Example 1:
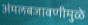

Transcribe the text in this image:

अंमलबजावणीमुळे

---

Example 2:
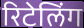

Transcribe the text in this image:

रिटेलिंग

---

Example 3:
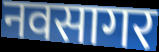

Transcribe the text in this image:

नवसागर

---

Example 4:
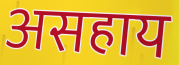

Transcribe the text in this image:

असहाय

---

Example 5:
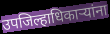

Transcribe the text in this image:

उपजिल्हाधिकाऱ्यांना